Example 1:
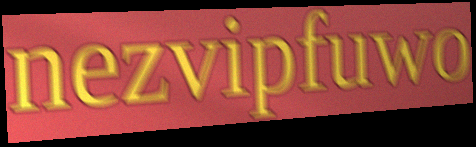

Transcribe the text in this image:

nezvipfuwo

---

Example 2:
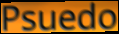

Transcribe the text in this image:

Psuedo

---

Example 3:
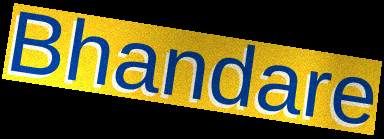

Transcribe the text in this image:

Bhandare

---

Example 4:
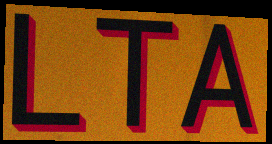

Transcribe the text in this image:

LTA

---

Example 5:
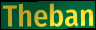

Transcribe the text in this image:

Theban